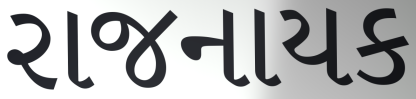
રાજનાયક